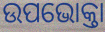
ଉପଭୋକ୍ତା